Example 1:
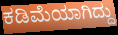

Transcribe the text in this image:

ಕಡಿಮೆಯಾಗಿದ್ದು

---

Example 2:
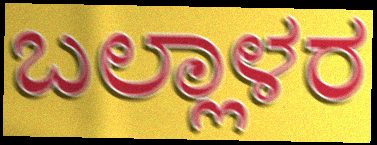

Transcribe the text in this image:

ಬಲ್ಲಾಳರ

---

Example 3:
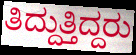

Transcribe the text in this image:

ತಿದ್ದುತ್ತಿದ್ದರು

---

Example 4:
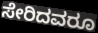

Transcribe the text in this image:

ಸೇರಿದವರೂ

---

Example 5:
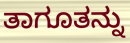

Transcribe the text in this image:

ತಾಗೂತನ್ನು